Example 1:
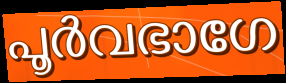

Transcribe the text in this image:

പൂർവഭാഗേ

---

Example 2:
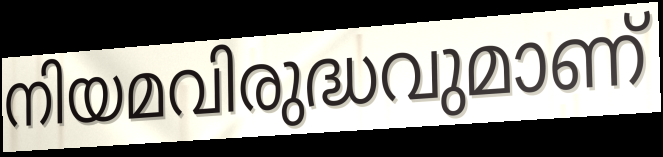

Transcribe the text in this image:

നിയമവിരുദ്ധവുമാണ്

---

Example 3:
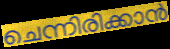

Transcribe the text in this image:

ചെന്നിരിക്കാൻ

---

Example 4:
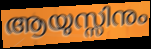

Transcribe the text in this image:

ആയുസ്സിനും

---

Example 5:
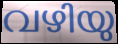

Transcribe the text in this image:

വഴിയു